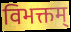
विभक्तम्